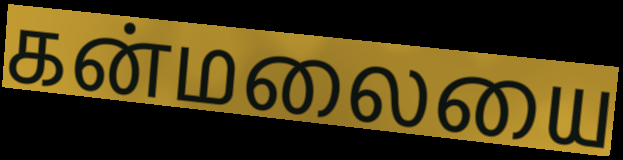
கன்மலையை